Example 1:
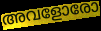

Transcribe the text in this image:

അവളോരോ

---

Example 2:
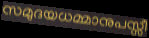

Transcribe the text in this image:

സമുദയധമ്മാനുപസ്സീ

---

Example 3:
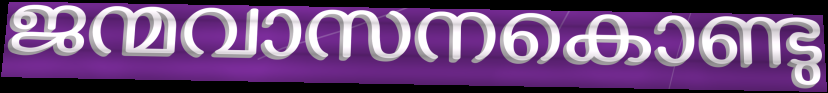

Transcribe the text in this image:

ജന്മവാസനകൊണ്ടു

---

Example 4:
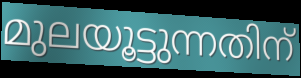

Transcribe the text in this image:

മുലയൂട്ടുന്നതിന്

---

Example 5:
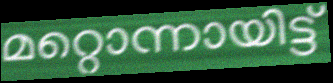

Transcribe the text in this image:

മറ്റൊന്നായിട്ട്